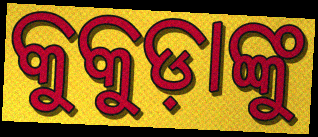
କୁକୁଡ଼ାଙ୍କୁ